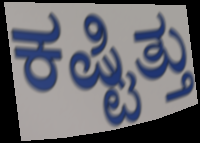
ಕಷ್ಟಿತ್ತು